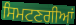
ਸਿਮਟਣਗੀਆਂ